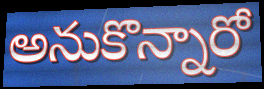
అనుకొన్నారో